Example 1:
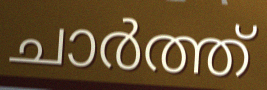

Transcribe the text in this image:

ചാർത്ത്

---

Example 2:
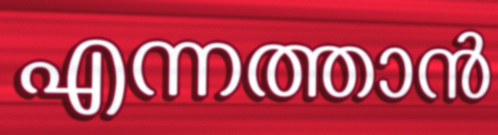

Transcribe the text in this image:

എന്നത്താൻ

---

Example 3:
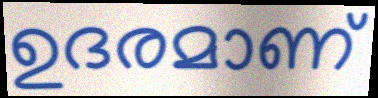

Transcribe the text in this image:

ഉദരമാണ്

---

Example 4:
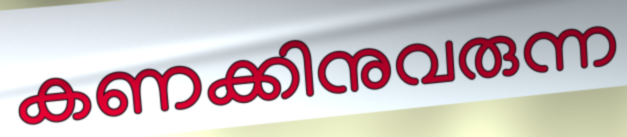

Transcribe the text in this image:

കണക്കിനുവരുന്ന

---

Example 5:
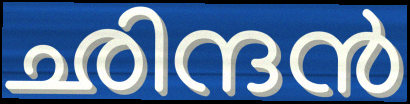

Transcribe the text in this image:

ഛിന്ദൻ